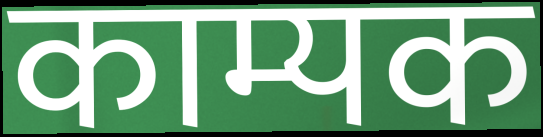
काम्यक